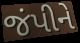
જંપીને